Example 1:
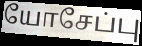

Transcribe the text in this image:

யோசேப்பு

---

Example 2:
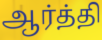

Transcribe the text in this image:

ஆர்த்தி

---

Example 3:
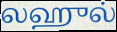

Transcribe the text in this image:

லஹுல்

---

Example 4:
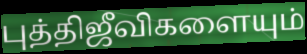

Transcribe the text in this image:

புத்திஜீவிகளையும்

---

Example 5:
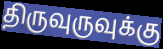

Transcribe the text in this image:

திருவுருவுக்கு